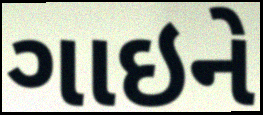
ગાઇને